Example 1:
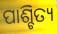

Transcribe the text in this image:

ପାଶ୍ଚିତ୍ୟ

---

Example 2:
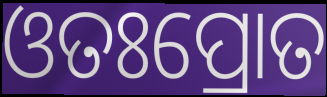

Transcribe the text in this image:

ଓତଃପ୍ରୋତ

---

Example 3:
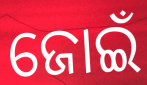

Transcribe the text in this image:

ଜୋଇଁ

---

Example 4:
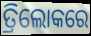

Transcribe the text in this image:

ତ୍ରିଲୋକରେ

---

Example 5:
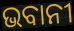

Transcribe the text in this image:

ଭବାନୀ